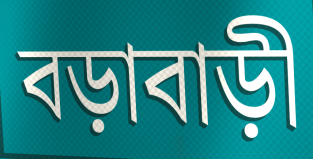
বড়াবাড়ী